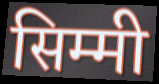
सिम्मी